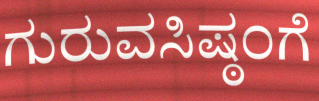
ಗುರುವಸಿಷ್ಠಂಗೆ